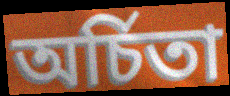
অৰ্চিতা